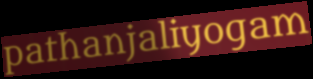
pathanjaliyogam